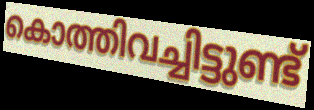
കൊത്തിവച്ചിട്ടുണ്ട്